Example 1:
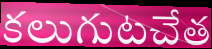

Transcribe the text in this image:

కలుగుటచేత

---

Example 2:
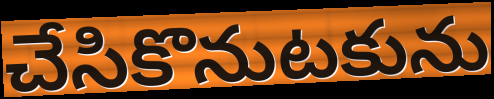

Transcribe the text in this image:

చేసికొనుటకును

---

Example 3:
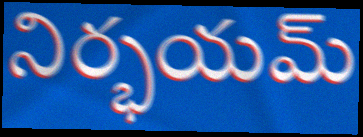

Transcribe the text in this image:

నిర్భయమ్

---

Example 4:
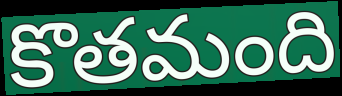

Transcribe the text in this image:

కొతమంది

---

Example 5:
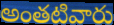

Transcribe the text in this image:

అంతటివారు